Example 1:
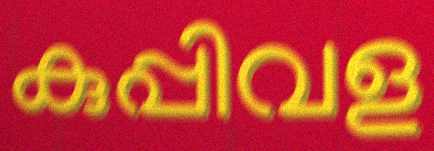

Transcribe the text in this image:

കുപ്പിവള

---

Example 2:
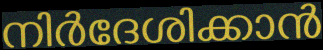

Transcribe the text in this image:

നിർദേശിക്കാൻ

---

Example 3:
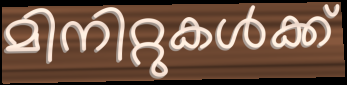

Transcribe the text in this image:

മിനിറ്റുകൾക്ക്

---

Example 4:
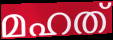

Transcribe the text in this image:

മഹത്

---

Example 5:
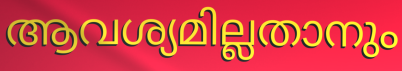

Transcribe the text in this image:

ആവശ്യമില്ലതാനും